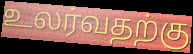
உலர்வதற்கு